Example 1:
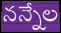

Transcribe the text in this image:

నన్నేల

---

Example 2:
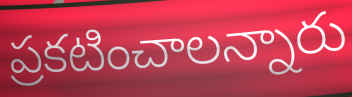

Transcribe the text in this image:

ప్రకటించాలన్నారు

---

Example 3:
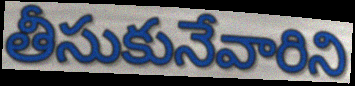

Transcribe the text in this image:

తీసుకునేవారిని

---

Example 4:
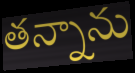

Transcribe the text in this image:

తన్నాను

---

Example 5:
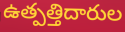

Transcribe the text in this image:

ఉత్పత్తిదారుల